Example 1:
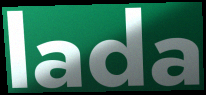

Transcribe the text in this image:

lada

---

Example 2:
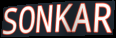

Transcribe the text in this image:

SONKAR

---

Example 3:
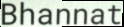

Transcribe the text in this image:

Bhannat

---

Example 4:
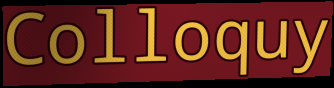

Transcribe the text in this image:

Colloquy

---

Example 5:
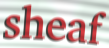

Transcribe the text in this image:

sheaf